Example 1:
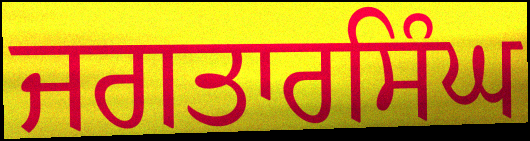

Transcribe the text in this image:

ਜਗਤਾਰਸਿੰਘ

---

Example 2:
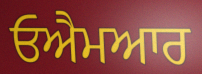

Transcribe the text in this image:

ਓਐਮਆਰ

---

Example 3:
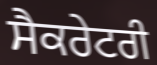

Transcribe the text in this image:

ਸੈਕਰੇਟਰੀ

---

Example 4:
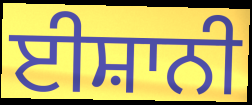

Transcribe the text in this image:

ਈਸ਼ਾਨੀ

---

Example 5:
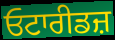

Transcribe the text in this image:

ਓਟਾਰੀਡਜ਼